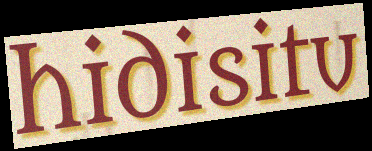
hidisitu